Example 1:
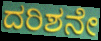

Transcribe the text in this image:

ದರಿಶನೇ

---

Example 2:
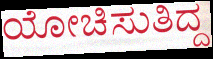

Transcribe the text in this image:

ಯೋಚಿಸುತಿದ್ದ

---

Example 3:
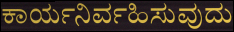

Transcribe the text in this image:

ಕಾರ್ಯನಿರ್ವಹಿಸುವುದು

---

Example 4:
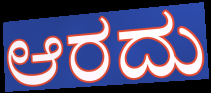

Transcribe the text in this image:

ಆರದು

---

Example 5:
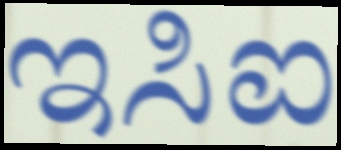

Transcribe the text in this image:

ಇಸಿಐ